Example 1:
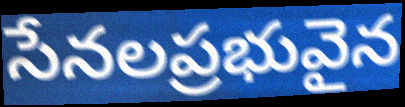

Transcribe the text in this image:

సేనలప్రభువైన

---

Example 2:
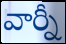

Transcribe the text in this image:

వార్నీ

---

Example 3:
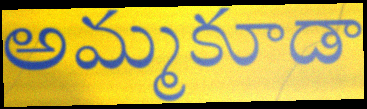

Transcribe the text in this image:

అమ్మకూడా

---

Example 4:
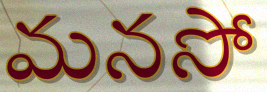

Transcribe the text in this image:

మనసో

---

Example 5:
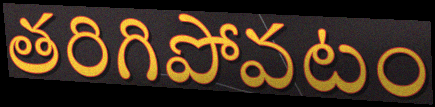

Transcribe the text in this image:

తరిగిపోవటం